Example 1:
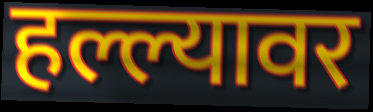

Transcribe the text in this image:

हल्ल्यावर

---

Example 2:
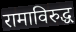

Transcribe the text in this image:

रामाविरुद्ध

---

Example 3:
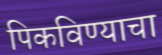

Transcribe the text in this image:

पिकविण्याचा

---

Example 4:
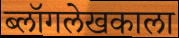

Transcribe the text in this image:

ब्लॉगलेखकाला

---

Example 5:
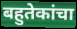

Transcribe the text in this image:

बहुतेकांचा